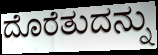
ದೊರೆತುದನ್ನು